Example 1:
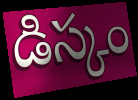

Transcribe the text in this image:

డిస్కం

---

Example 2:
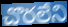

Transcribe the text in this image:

చొరలేని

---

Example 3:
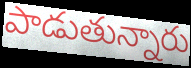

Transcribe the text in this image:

పాడుతున్నారు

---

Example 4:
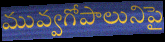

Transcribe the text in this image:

మువ్వగోపాలునిపై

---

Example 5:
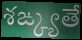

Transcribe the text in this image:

శఙ్క్యతే